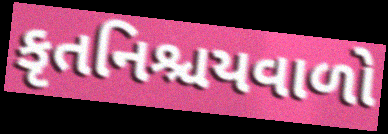
કૃતનિશ્ચયવાળો